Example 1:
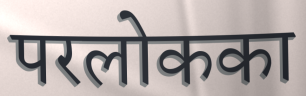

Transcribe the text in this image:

परलोकका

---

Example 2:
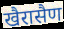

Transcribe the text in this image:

खैरासैण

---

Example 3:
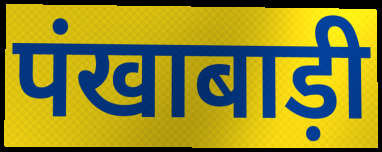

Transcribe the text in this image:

पंखाबाड़ी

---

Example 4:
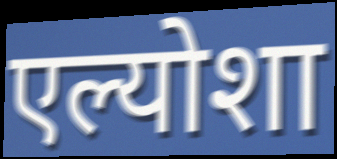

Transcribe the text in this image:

एल्योशा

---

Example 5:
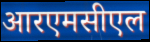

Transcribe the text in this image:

आरएमसीएल